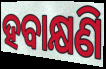
ହବାକ୍ଷଣି